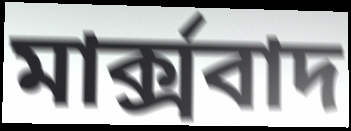
মার্ক্সবাদ